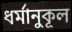
ধর্মানুকূল